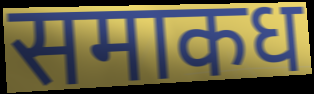
समाकध